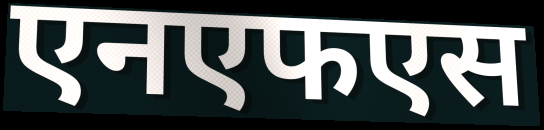
एनएफएस